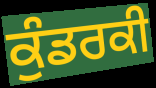
ਕੁੰਡਰਕੀ